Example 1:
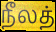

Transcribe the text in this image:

நீலத்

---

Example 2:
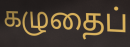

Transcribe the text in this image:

கழுதைப்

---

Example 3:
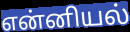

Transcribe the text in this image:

என்னியல்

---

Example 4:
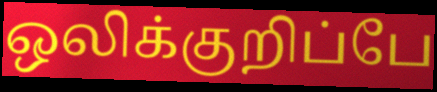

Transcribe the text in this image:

ஒலிக்குறிப்பே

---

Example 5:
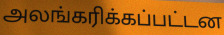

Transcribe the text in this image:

அலங்கரிக்கப்பட்டன